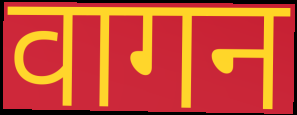
वागन